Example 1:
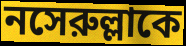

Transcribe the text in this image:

নসেরুল্লাকে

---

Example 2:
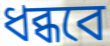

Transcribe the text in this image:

ধব্ধবে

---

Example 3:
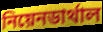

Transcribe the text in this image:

নিয়েনডার্থাল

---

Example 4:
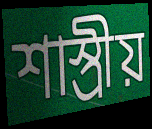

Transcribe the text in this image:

শাস্ত্রীয়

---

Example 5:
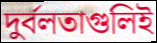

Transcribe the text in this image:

দুর্বলতাগুলিই